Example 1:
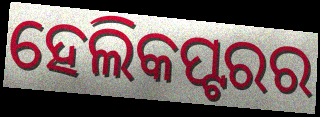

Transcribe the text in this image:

ହେଲିକପ୍ଟରର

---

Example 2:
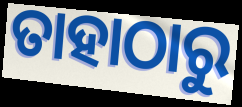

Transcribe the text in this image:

ତାହାଠାରୁ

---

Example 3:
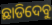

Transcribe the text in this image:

ଛାଡିଦେବୁ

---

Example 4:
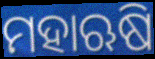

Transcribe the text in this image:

ମହାଋଷି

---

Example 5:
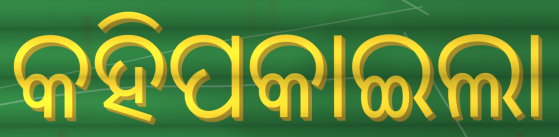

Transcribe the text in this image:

କହିପକାଇଲା